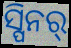
ସ୍ପିନର୍